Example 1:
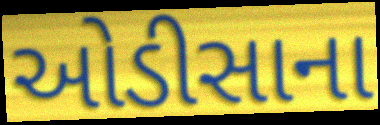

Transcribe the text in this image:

ઓડીસાના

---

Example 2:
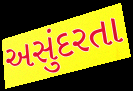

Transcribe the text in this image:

અસુંદરતા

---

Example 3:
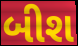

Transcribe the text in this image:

બીશ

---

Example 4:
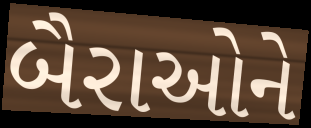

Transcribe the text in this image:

બૈરાઓને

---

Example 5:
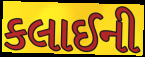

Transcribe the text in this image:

કલાઈની